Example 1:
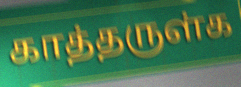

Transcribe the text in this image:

காத்தருள்க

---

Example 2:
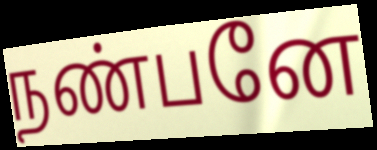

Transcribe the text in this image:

நண்பனே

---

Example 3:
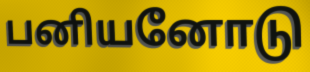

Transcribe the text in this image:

பனியனோடு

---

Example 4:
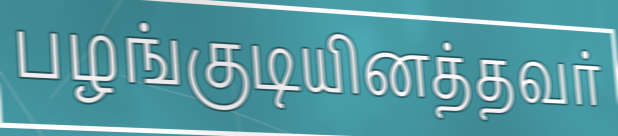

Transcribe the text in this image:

பழங்குடியினத்தவர்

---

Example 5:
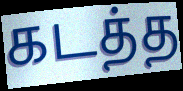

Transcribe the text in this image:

கடத்த